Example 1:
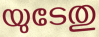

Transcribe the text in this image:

യുടേതു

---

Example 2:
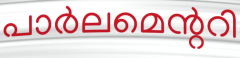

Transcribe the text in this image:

പാർലമെന്ററി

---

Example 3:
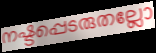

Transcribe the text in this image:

നഷ്ടപ്പെടരുതല്ലോ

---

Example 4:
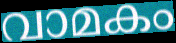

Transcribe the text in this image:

വാമകം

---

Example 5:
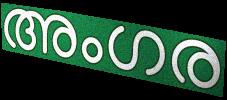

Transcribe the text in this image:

അംഗര